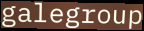
galegroup